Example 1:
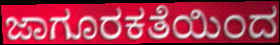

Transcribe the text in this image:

ಜಾಗೂರಕತೆಯಿಂದ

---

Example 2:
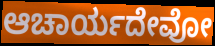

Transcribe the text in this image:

ಆಚಾರ್ಯದೇವೋ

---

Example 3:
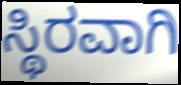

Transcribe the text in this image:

ಸ್ಥಿರವಾಗಿ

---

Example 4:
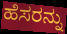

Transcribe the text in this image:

ಹೆಸರನ್ನು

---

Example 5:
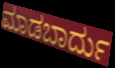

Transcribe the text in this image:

ಮಾಡಬಾರ್ದು